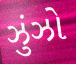
ઝુંઝો